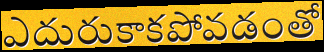
ఎదురుకాకపోవడంతో